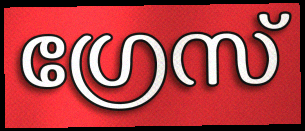
ഗ്രേസ്